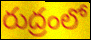
రుద్రంలో